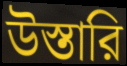
উস্তারি